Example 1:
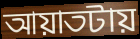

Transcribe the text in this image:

আয়াতটায়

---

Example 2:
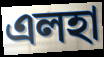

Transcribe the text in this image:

এলহা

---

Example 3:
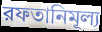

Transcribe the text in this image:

রফতানিমূল্য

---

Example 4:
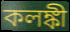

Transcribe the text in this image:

কলঙ্কী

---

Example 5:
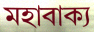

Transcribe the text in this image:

মহাবাক্য